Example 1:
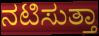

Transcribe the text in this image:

ನಟಿಸುತ್ತಾ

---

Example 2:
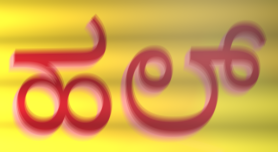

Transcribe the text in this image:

ಹಲ್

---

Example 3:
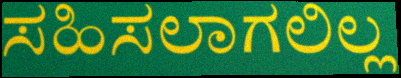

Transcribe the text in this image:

ಸಹಿಸಲಾಗಲಿಲ್ಲ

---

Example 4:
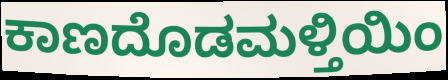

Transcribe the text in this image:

ಕಾಣದೊಡಮಳ್ತಿಯಿಂ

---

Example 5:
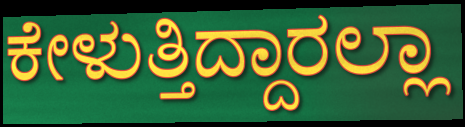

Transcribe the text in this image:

ಕೇಳುತ್ತಿದ್ದಾರಲ್ಲಾ